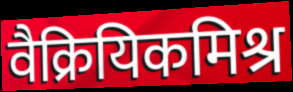
वैक्रियिकमिश्र